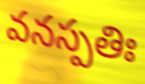
వనస్పతిః